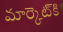
మార్కెట్‌కి